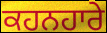
ਕਹਨਹਾਰੇ